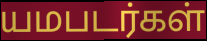
யமபடர்கள்